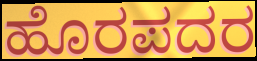
ಹೊರಪದರ